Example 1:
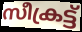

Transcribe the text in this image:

സീക്രട്ട്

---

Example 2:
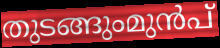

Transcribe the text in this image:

തുടങ്ങുംമുൻപ്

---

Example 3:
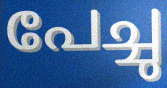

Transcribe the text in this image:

പേച്ചു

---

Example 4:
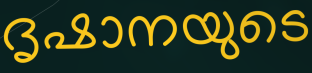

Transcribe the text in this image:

ദൃഷാനയുടെ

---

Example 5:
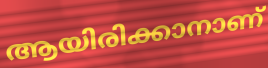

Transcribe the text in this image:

ആയിരിക്കാനാണ്